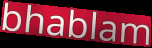
bhablam